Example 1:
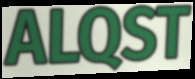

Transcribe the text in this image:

ALQST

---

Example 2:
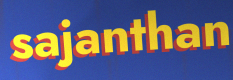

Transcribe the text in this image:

sajanthan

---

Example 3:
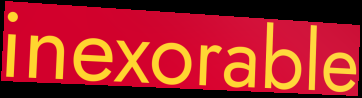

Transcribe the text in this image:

inexorable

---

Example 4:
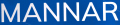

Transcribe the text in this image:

MANNAR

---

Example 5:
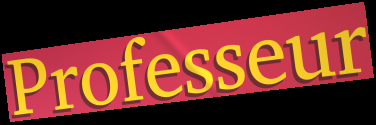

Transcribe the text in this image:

Professeur